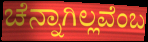
ಚೆನ್ನಾಗಿಲ್ಲವೆಂಬ